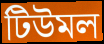
টিউমল